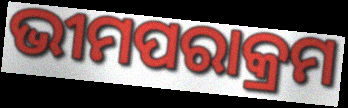
ଭୀମପରାକ୍ରମ